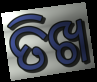
ତିଖ